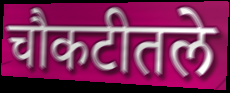
चौकटीतले